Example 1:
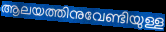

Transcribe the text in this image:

ആലയത്തിനുവേണ്ടിയുള്ള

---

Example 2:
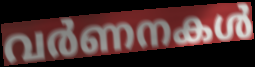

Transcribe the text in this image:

വർണനകൾ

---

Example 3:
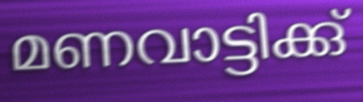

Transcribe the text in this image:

മണവാട്ടിക്കു്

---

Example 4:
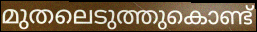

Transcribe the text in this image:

മുതലെടുത്തുകൊണ്ട്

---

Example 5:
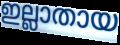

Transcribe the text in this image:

ഇല്ലാതായ